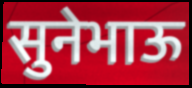
सुनेभाऊ